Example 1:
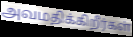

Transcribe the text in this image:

அவமதிக்கிறீர்கள்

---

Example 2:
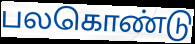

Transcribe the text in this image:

பலகொண்டு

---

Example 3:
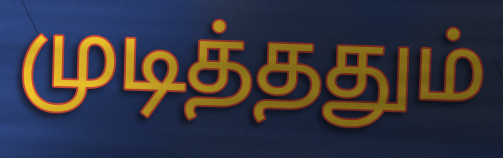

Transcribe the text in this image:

முடித்ததும்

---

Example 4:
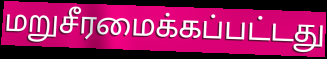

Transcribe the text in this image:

மறுசீரமைக்கப்பட்டது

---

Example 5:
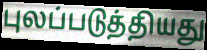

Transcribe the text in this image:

புலப்படுத்தியது